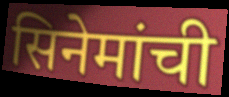
सिनेमांची